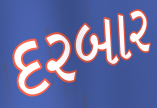
દરબાર